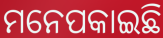
ମନେପକାଇଛି